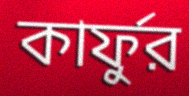
কার্ফুর